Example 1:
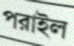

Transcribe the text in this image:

পরাইল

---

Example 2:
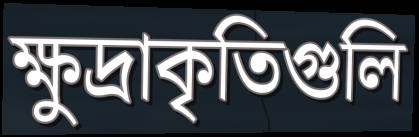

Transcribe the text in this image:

ক্ষুদ্রাকৃতিগুলি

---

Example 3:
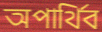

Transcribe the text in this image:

অপার্থিব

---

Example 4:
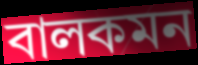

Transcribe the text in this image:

বালকমন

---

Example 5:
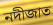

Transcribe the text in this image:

নদীজাত